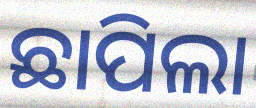
ଛାପିଲା